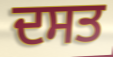
ਦਸਤ